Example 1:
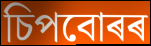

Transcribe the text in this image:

চিপবোৰৰ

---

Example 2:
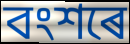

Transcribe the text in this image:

বংশৰে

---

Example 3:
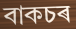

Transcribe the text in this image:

বাকচৰ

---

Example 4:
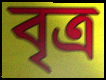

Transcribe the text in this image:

বৃত্ৰ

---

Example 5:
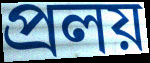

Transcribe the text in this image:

প্ৰলয়